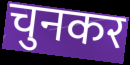
चुनकर